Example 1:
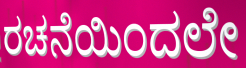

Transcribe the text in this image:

ರಚನೆಯಿಂದಲೇ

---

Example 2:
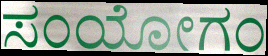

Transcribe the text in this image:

ಸಂಯೋಗಂ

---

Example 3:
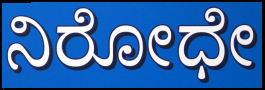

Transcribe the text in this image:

ನಿರೋಧೇ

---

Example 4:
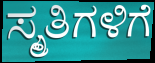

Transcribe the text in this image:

ಸ್ಮೃತಿಗಳಿಗೆ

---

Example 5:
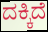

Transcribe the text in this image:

ದಕ್ಕಿದೆ